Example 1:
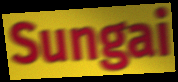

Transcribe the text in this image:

Sungai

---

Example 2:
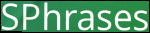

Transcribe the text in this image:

SPhrases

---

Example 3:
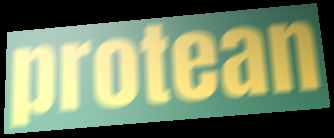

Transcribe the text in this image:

protean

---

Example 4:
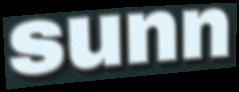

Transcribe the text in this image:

sunn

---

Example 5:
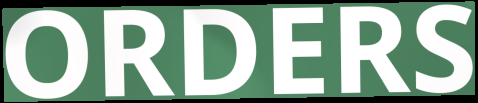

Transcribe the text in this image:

ORDERS